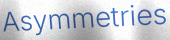
Asymmetries